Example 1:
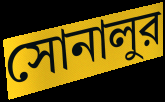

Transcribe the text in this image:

সোনালুর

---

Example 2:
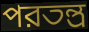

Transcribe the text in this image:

পরতন্ত্র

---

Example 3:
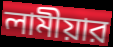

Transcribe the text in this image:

লামীয়ার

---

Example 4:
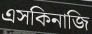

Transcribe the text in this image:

এসকিনাজি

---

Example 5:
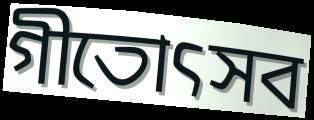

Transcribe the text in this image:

গীতোৎসব